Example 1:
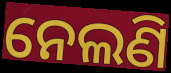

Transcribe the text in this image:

ନେଲଣି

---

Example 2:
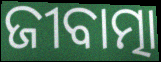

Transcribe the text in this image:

ଜୀବାତ୍ମା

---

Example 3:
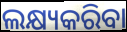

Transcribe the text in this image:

ଲକ୍ଷ୍ୟକରିବା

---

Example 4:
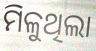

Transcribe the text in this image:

ମିଳୁଥିଲା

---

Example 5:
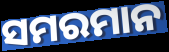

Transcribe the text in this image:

ସମରମାନ